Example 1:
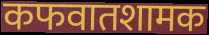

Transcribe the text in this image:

कफवातशामक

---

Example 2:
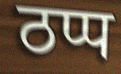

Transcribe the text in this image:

ठप्प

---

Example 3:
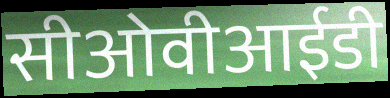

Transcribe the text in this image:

सीओवीआईडी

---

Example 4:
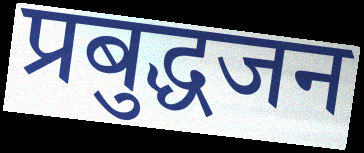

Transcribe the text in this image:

प्रबुद्धजन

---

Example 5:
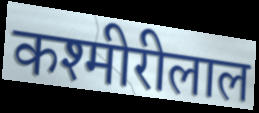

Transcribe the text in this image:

कश्मीरीलाल